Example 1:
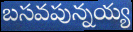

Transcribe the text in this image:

బసవపున్నయ్య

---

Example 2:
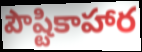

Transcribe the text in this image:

పౌష్టికాహార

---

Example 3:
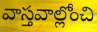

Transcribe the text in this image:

వాస్తవాల్లోంచి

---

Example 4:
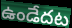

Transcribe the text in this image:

ఉండేదట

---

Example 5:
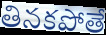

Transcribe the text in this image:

తినకపోతే